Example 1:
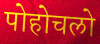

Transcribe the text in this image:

पोहोचलो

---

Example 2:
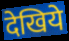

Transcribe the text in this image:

देखिये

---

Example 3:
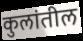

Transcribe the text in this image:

कुलांतील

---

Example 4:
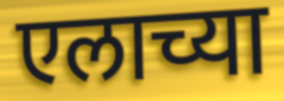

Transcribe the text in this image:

एलाच्या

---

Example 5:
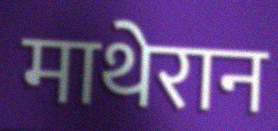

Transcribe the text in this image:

माथेरान